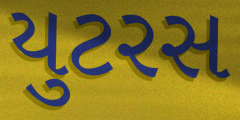
યુટરસ